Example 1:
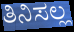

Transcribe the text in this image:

ತಿನಿಸಲ್ಲ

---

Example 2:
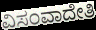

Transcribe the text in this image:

ವಿಸಂವಾದೇತಿ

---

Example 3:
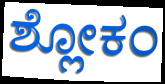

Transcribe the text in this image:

ಶ್ಲೋಕಂ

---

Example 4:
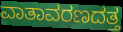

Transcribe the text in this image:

ವಾತಾವರಣದತ್ತ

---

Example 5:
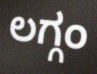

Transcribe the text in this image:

ಲಗ್ಗಂ